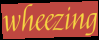
wheezing